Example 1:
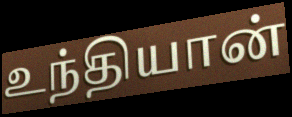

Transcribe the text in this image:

உந்தியான்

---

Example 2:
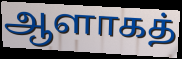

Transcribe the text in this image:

ஆளாகத்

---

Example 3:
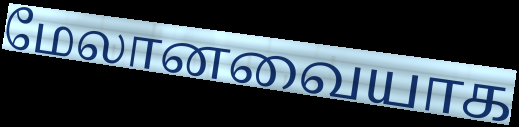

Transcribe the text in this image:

மேலானவையாக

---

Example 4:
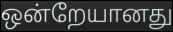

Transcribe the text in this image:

ஒன்றேயானது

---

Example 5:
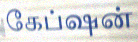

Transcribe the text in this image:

கேப்ஷன்